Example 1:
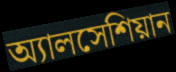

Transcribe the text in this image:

অ্যালসেশিয়ান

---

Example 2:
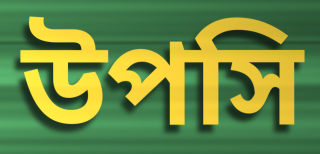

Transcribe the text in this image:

উপসি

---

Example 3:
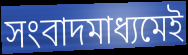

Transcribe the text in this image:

সংবাদমাধ্যমেই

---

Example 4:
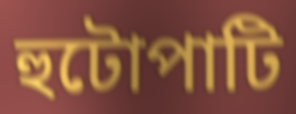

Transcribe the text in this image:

হুটোপাটি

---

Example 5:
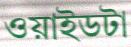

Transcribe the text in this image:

ওয়াইডটা